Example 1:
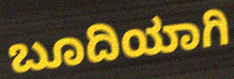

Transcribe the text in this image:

ಬೂದಿಯಾಗಿ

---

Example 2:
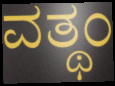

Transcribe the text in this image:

ವತ್ಥಂ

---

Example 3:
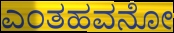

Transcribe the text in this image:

ಎಂತಹವನೋ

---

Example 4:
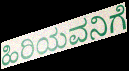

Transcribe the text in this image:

ಹಿರಿಯವನಿಗೆ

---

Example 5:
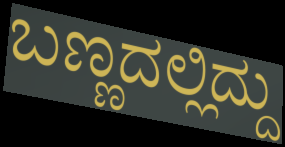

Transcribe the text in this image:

ಬಣ್ಣದಲ್ಲಿದ್ದು